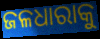
ଜଳଧାରାକୁ